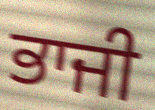
ਭਾਜੀ